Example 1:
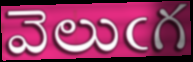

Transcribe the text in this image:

వెలుఁగ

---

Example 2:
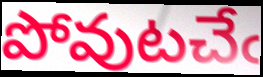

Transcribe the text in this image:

పోవుటచేఁ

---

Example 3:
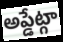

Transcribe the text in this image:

అప్డేట్గా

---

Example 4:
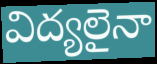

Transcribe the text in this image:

విద్యలైనా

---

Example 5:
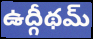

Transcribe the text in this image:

ఉద్గీథమ్